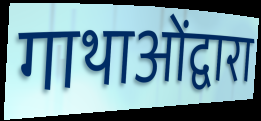
गाथाओंद्वारा